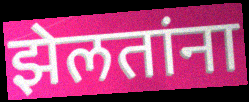
झेलतांना